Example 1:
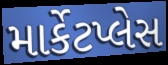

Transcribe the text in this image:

માર્કેટપ્લેસ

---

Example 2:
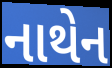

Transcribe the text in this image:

નાથેન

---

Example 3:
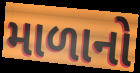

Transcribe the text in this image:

માળાનો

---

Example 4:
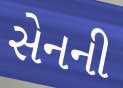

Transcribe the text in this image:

સેનની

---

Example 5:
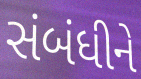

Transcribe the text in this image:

સંબંધીને